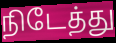
நிடேத்து